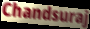
Chandsuraj